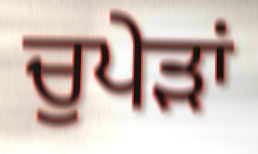
ਚੁਪੇੜਾਂ